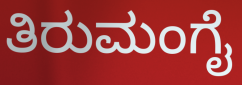
ತಿರುಮಂಗೈ